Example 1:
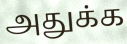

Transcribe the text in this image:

அதுக்க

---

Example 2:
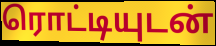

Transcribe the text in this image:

ரொட்டியுடன்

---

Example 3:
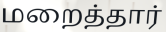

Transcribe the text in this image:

மறைத்தார்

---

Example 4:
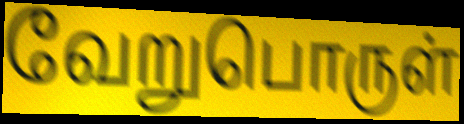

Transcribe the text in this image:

வேறுபொருள்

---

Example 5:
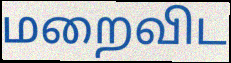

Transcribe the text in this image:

மறைவிட